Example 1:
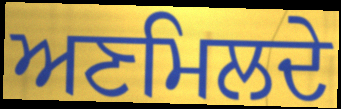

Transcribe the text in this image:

ਅਣਮਿਲਦੇ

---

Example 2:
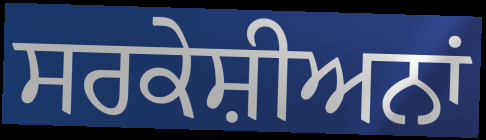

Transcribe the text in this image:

ਸਰਕੇਸ਼ੀਅਨਾਂ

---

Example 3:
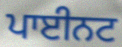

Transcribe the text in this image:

ਪਾਈਨਟ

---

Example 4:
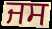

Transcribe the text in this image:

ਜਸ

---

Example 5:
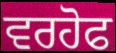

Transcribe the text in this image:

ਵਰਹੋਫ